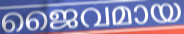
ജൈവമായ